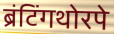
ब्रंटिंगथोरपे